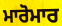
ਮਾਰੋਮਾਰ